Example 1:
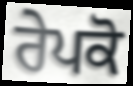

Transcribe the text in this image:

ਰੇਪਕੋ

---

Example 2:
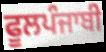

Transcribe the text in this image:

ਫੂਲਪੰਜਾਬੀ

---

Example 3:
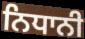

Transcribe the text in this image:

ਨਿਧਾਨੀ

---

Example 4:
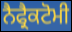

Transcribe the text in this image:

ਨੈਫ੍ਰੈਕਟੋਮੀ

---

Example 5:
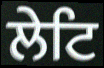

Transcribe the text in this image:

ਲੇਟਿ